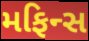
મફિન્સ